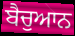
ਬੈਚੁਆਨ